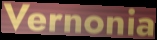
Vernonia